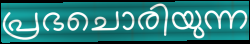
പ്രഭചൊരിയുന്ന